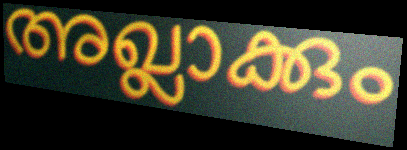
അഖ്ലാക്കും